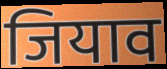
जियाव